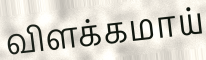
விளக்கமாய்